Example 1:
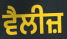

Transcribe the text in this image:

ਵੈਲੀਜ਼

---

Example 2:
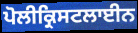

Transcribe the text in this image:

ਪੋਲੀਕ੍ਰਿਸਟਲਾਈਨ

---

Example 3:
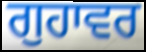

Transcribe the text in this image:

ਗੁਹਾਵਰ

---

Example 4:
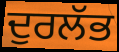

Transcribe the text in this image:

ਦੁਰਲੱਭ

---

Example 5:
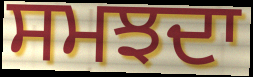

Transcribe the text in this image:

ਸਮਝਦਾ